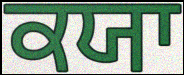
ਕਯਾ